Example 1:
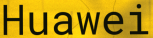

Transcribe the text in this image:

Huawei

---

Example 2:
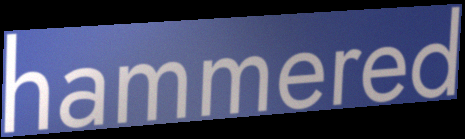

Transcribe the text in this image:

hammered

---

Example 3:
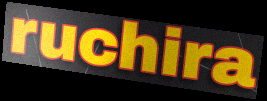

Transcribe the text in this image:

ruchira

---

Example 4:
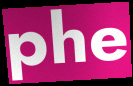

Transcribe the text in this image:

phe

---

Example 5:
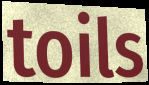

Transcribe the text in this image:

toils